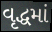
વૃદ્ધમાં